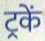
ट्रकें